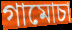
গামোচা